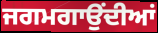
ਜਗਮਗਾਉਂਦੀਆਂ